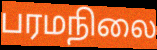
பரமநிலை